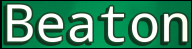
Beaton